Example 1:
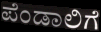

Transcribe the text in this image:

ಪೆಂಡಾಲಿಗೆ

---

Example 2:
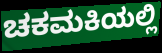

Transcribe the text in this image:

ಚಕಮಕಿಯಲ್ಲಿ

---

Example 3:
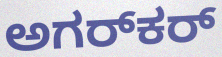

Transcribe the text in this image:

ಅಗರ್‌ಕರ್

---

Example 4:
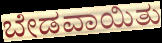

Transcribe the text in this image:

ಬೇಡವಾಯಿತು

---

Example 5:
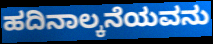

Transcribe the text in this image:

ಹದಿನಾಲ್ಕನೆಯವನು